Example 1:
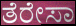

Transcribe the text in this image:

ತೆರೇಸಾ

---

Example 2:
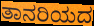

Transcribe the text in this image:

ತಾನರಿಯದ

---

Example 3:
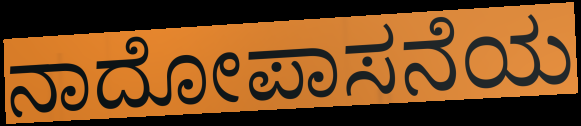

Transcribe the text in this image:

ನಾದೋಪಾಸನೆಯ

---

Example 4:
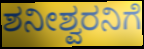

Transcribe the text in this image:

ಶನೀಶ್ವರನಿಗೆ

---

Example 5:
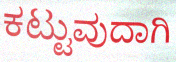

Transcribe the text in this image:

ಕಟ್ಟುವುದಾಗಿ